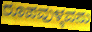
ರೂಪವುಳ್ಳವನು